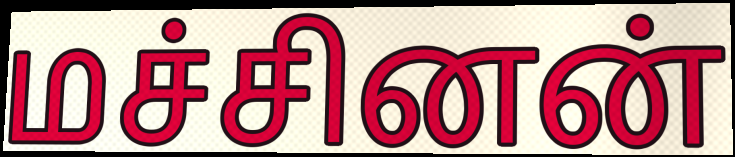
மச்சினன்